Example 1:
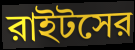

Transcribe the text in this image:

রাইটসের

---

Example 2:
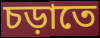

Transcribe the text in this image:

চড়াতে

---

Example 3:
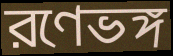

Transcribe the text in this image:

রণেভঙ্গ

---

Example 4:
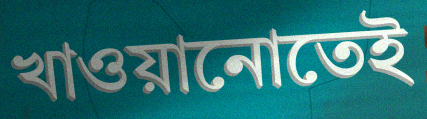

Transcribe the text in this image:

খাওয়ানোতেই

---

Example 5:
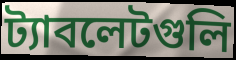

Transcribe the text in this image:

ট্যাবলেটগুলি